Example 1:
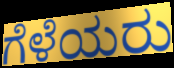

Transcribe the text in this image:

ಗೆಳೆಯರು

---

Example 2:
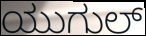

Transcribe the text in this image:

ಯುಗುಲ್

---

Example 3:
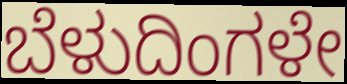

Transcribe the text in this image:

ಬೆಳುದಿಂಗಳೇ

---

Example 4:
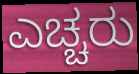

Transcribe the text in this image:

ಎಚ್ಚರು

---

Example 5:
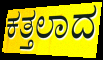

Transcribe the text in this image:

ಕತ್ತಲಾದ